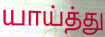
யாய்த்து